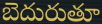
బెదురుతూ